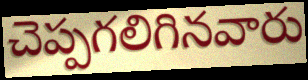
చెప్పగలిగినవారు